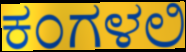
ಕಂಗಳಲಿ